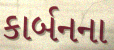
કાર્બનના